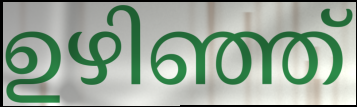
ഉഴിഞ്ഞ്